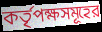
কর্তৃপক্ষসমূহের